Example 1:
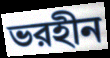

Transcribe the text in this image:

ভরহীন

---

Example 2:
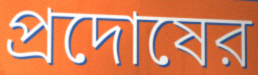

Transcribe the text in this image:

প্রদোষের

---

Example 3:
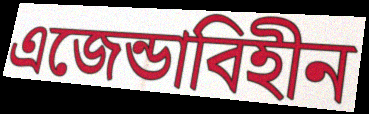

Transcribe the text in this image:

এজেন্ডাবিহীন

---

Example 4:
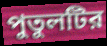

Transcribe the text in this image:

পুতুলটির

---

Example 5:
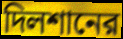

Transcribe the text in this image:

দিলশানের